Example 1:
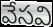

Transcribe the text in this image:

వేసవి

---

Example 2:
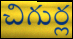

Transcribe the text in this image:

చిగుర్ల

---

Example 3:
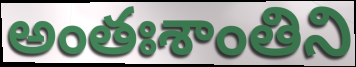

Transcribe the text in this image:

అంతఃశాంతిని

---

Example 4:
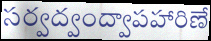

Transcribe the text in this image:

సర్వద్వంద్వాపహారిణే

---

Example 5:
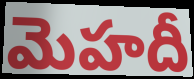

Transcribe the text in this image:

మెహదీ